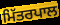
ਮਿੱਤਰਪਾਲ